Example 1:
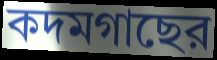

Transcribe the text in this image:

কদমগাছের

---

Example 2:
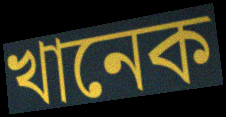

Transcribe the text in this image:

খানেক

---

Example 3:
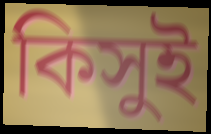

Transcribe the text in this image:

কিসুই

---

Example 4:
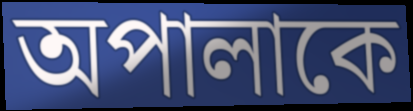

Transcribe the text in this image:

অপালাকে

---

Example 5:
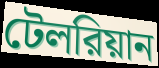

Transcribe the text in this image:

টেলরিয়ান